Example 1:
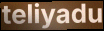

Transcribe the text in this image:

teliyadu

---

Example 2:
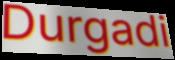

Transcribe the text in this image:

Durgadi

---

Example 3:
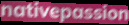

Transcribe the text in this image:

nativepassion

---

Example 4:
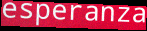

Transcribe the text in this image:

esperanza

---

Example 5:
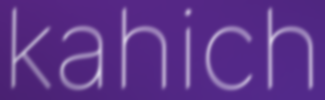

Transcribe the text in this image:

kahich